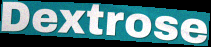
Dextrose